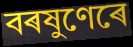
বৰষুণেৰে